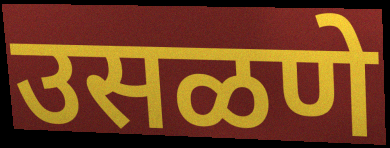
उसळणे